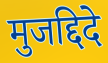
मुजद्दिदे